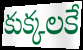
కుక్కలకే